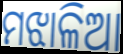
ମଝାଳିଆ